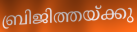
ബ്രിജിത്തയ്ക്കു